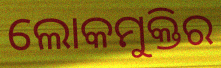
ଲୋକମୁକ୍ତିର